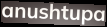
anushtupa